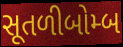
સૂતળીબોમ્બ